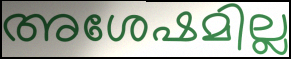
അശേഷമില്ല